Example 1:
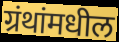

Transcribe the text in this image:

ग्रंथांमधील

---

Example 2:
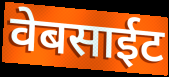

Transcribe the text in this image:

वेबसाईट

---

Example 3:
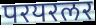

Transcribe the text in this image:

परयरलर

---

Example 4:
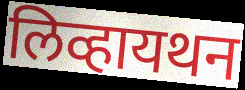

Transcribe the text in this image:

लिव्हायथन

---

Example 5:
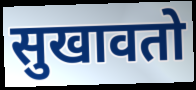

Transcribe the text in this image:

सुखावतो